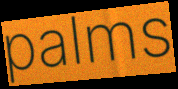
palms